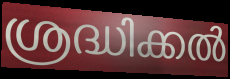
ശ്രദ്ധിക്കൽ